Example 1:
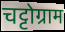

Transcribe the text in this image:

चट्टोग्राम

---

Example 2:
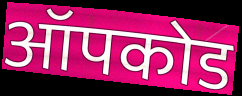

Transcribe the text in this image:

ऑपकोड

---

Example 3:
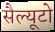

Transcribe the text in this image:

सैल्यूटो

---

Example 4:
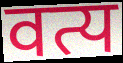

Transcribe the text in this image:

वत्य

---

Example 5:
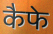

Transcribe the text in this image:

कैफे